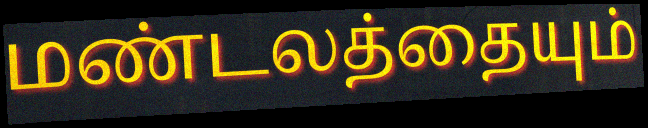
மண்டலத்தையும்